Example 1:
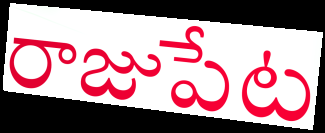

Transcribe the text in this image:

రాజుపేట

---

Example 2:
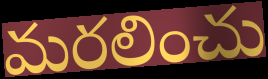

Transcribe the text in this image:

మరలించు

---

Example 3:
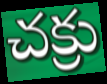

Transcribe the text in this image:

చక్రు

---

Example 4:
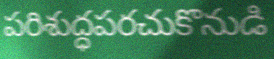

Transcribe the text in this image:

పరిశుద్ధపరచుకొనుడి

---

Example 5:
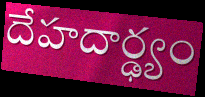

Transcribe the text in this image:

దేహదార్ఢ్యం